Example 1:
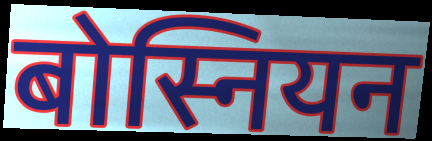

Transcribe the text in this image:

बोस्नियन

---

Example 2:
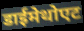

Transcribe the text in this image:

डाईमेथोएट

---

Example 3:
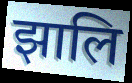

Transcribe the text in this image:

झालि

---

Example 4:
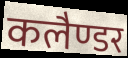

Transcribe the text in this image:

कलैण्डर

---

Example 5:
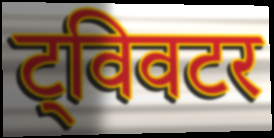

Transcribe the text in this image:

ट्विवटर